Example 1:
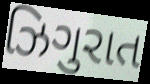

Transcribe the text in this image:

ઝિગુરાત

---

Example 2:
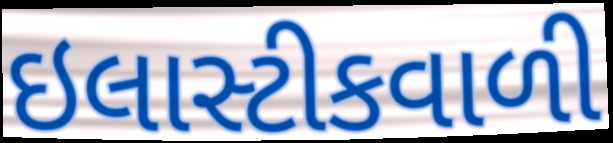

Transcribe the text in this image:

ઇલાસ્ટીકવાળી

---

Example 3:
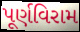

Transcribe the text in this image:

પૂર્ણવિરામ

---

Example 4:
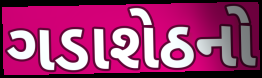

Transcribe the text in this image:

ગડાશેઠનો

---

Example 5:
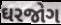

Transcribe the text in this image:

ઘરજોગ